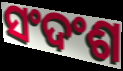
ସଂଦଂଶ